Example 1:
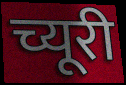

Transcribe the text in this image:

च्यूरी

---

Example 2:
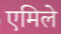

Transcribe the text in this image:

एमिले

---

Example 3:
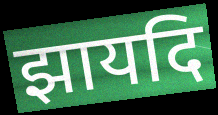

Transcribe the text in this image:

झायदि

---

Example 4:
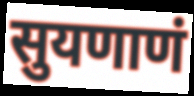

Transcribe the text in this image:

सुयणाणं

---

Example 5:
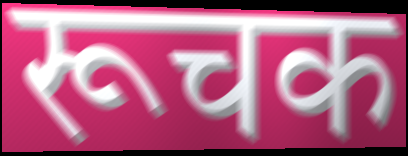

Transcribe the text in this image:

रूचक